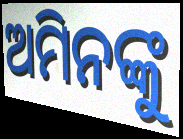
ଅମିନଙ୍କୁ